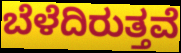
ಬೆಳೆದಿರುತ್ತವೆ